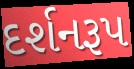
દર્શનરૂપ